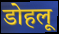
डोहलू